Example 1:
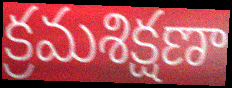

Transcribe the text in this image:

క్రమశిక్షణా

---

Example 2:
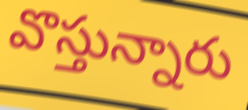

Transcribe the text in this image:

వొస్తున్నారు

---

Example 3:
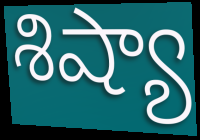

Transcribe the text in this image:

శిష్యా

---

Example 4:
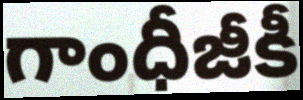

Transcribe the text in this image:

గాంధీజీకీ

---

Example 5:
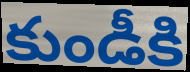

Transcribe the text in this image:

కుండీకి